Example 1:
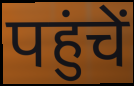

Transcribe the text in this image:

पहुंचें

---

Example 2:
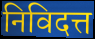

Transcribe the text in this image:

निविदत्त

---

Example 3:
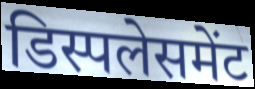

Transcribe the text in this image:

डिस्पलेसमेंट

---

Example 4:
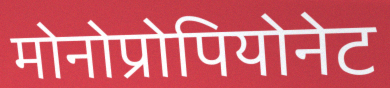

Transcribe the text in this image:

मोनोप्रोपियोनेट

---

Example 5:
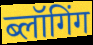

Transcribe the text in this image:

ब्लॉगिंग